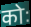
कोः